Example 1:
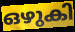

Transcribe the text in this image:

ഒഴുകി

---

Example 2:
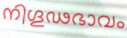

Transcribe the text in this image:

നിഗൂഢഭാവം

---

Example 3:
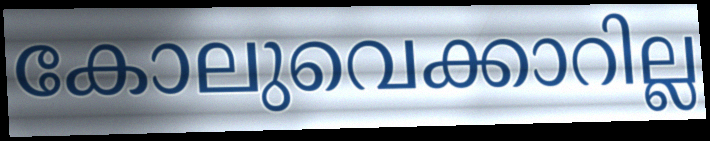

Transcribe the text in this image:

കോലുവെക്കാറില്ല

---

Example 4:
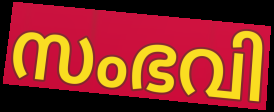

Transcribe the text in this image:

സംഭവി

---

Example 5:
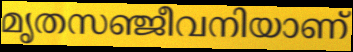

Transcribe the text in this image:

മൃതസഞ്ജീവനിയാണ്